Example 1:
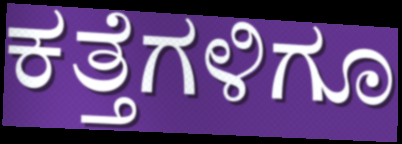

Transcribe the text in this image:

ಕತ್ತೆಗಳಿಗೂ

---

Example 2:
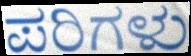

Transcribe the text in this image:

ಪರಿಗಳು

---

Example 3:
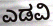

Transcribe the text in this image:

ಎಡವಿ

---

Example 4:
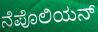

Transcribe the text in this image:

ನೆಪೊಲಿಯನ್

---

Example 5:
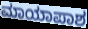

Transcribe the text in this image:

ಮಾಯಾಪಾಶ